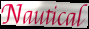
Nautical